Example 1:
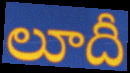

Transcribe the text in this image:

లూదీ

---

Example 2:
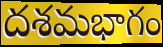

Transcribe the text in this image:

దశమభాగం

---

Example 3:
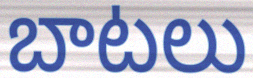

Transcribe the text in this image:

బాటలు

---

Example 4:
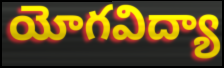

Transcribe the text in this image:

యోగవిద్యా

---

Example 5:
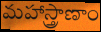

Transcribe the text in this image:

మహాస్త్రాణాం